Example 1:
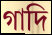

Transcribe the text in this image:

গাদি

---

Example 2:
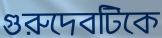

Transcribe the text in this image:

গুরুদেবটিকে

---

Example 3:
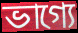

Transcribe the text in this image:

ভাগ্যে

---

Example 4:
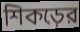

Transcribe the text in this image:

শিকড়ের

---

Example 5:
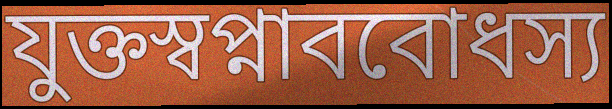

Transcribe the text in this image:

যুক্তস্বপ্নাববোধস্য